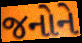
જનોને